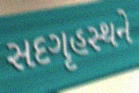
સદગૃહસ્થને